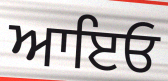
ਆਇਓ